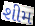
શીમ